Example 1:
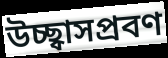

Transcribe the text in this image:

উচ্ছ্বাসপ্রবণ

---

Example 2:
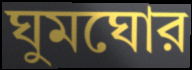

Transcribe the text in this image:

ঘুমঘোর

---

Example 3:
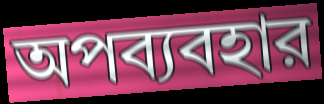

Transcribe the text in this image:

অপব্যবহার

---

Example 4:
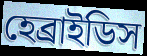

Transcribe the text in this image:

হেব্রাইডিস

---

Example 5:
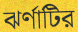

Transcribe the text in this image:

ঝর্ণাটির